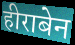
हीराबेन